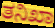
ತನಿಖಾ